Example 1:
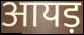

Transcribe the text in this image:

आयड़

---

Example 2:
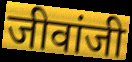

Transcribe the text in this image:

जीवांजी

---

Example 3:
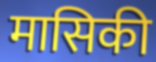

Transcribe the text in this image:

मासिकी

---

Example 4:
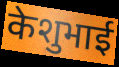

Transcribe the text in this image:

केशुभाई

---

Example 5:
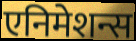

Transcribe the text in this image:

एनिमेशन्स